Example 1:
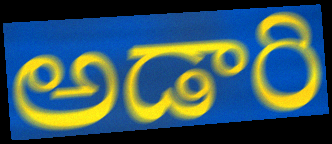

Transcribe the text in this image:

అడారి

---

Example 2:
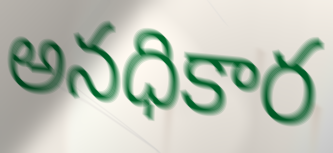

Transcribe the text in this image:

అనధికార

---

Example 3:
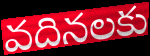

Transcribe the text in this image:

వదినలకు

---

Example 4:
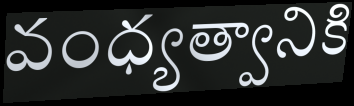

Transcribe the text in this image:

వంధ్యత్వానికి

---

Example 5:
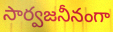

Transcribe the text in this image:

సార్వజనీనంగా